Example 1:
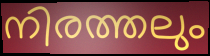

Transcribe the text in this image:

നിരത്തലും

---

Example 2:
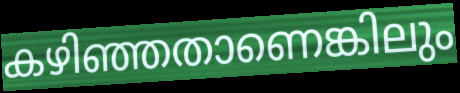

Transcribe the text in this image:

കഴിഞ്ഞതാണെങ്കിലും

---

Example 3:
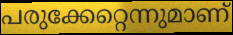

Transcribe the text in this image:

പരുക്കേറ്റെന്നുമാണ്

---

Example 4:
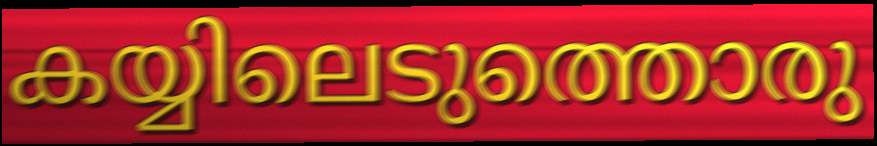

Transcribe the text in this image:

കയ്യിലെടുത്തൊരു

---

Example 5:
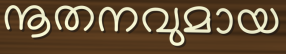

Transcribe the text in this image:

നൂതനവുമായ